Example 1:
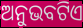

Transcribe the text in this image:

ଅନୁଭବଟିଏ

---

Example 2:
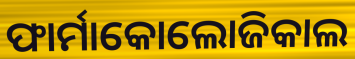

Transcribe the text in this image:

ଫାର୍ମାକୋଲୋଜିକାଲ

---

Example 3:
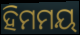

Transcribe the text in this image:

ହିମମୟ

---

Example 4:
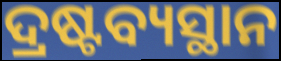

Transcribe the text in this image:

ଦ୍ରଷ୍ଟବ୍ୟସ୍ଥାନ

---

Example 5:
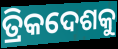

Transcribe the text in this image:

ତ୍ରିକଦେଶକୁ